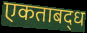
एकताबद्ध